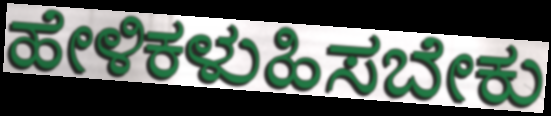
ಹೇಳಿಕಳುಹಿಸಬೇಕು